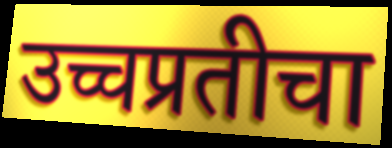
उच्चप्रतीचा